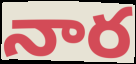
నార